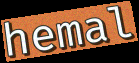
hemal